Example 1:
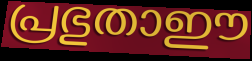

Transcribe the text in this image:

പ്രഭുതാഈ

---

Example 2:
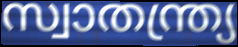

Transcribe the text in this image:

സ്വാതന്ത്ര്യ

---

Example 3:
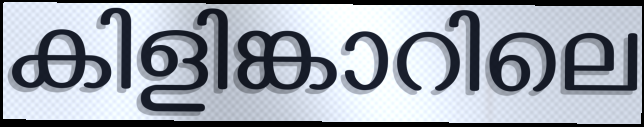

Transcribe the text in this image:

കിളിങ്കാറിലെ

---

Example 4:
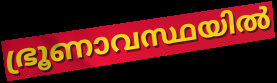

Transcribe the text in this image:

ഭ്രൂണാവസ്ഥയിൽ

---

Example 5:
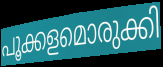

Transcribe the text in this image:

പൂക്കളമൊരുക്കി